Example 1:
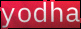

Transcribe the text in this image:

yodha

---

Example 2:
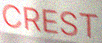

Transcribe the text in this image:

CREST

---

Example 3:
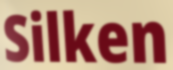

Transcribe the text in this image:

Silken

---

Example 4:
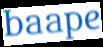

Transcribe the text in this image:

baape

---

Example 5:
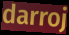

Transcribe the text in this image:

darroj